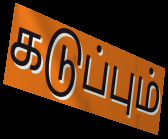
கடுப்பும்